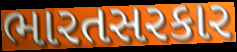
ભારતસરકાર